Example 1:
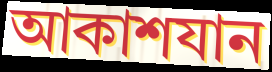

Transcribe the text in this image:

আকাশযান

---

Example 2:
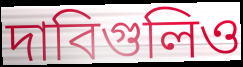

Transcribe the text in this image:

দাবিগুলিও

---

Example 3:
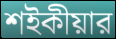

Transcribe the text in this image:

শইকীয়ার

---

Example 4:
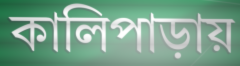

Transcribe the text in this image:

কালিপাড়ায়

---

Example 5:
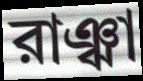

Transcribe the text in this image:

রাঞ্ঝা